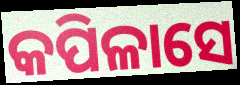
କପିଳାସେ